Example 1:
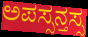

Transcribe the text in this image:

ಅಪಸ್ಸನ್ತಸ್ಸ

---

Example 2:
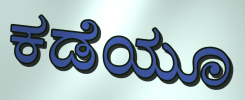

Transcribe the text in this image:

ಕಡೆಯೂ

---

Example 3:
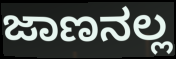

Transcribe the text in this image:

ಜಾಣನಲ್ಲ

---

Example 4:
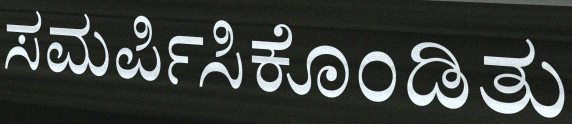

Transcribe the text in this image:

ಸಮರ್ಪಿಸಿಕೊಂಡಿತು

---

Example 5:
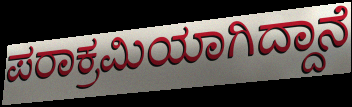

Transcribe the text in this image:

ಪರಾಕ್ರಮಿಯಾಗಿದ್ದಾನೆ